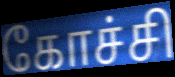
கோச்சி